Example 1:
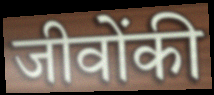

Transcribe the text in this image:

जीवोंकी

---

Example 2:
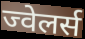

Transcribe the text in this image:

ज्वेलर्स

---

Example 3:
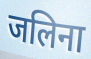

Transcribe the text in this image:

जलिना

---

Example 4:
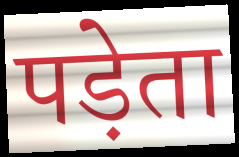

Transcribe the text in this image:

पड़ेता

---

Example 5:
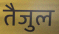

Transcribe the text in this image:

तैजुल